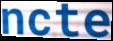
ncte